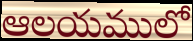
ఆలయములో